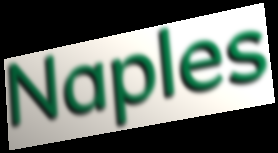
Naples